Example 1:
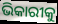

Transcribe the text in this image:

ଭିକାରୀକୁ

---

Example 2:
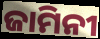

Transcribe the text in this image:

ଜାମିନୀ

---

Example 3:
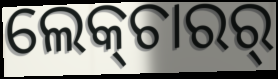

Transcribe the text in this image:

ଲେକ୍‍ଚାରର୍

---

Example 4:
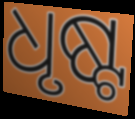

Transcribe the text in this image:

ଧୃଷ୍ଟ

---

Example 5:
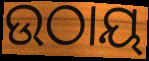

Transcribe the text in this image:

ଉଠାୟ